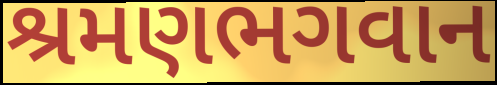
શ્રમણભગવાન